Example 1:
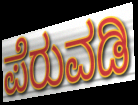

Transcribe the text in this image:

ಪೆರುವಡಿ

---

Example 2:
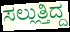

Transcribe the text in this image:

ಸಲ್ಲುತ್ತಿದ್ದ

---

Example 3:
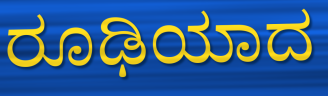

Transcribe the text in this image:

ರೂಢಿಯಾದ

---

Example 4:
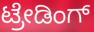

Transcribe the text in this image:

ಟ್ರೇಡಿಂಗ್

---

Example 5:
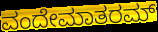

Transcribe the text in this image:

ವಂದೇಮಾತರಮ್